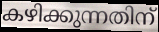
കഴിക്കുന്നതിന്